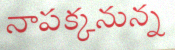
నాపక్కనున్న